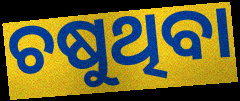
ଚଷୁଥିବା